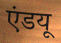
एंडयू